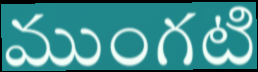
ముంగటి